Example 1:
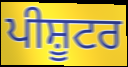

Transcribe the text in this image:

ਪੀਸ਼ੂਟਰ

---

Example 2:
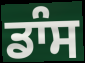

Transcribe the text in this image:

ਡਾੰਸ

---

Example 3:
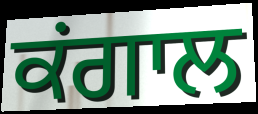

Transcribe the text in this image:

ਕਂਗਾਲ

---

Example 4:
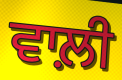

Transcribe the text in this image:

ਵਾਲ਼ੀ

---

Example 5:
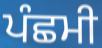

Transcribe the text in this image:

ਪੰਛਮੀ